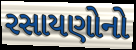
રસાયણોનો